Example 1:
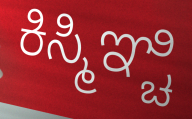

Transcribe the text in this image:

ಕಿಸ್ಮಿಞ್ಚಿ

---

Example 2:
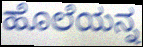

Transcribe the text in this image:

ಹೊಲೆಯನ್ನ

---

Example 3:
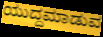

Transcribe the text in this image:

ಯುದ್ದಮಾಡುವ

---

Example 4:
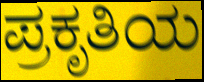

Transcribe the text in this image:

ಪ್ರಕೃತಿಯ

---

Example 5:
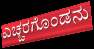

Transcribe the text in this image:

ಎಚ್ಚರಗೊಂಡನು